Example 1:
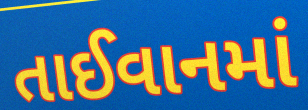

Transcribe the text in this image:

તાઈવાનમાં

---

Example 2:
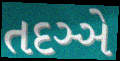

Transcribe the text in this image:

તદઞ્ઞે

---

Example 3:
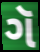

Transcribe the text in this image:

ગૅ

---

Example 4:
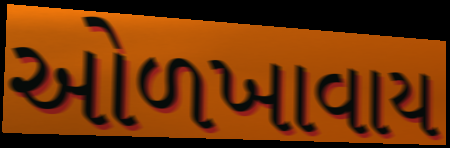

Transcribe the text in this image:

ઓળખાવાય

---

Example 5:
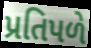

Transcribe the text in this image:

પ્રતિપળે